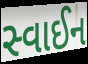
સ્વાઈન